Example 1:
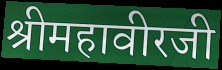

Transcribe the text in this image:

श्रीमहावीरजी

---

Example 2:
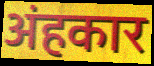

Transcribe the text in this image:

अंहकार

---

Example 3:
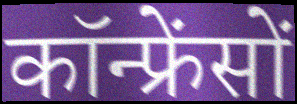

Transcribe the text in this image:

कॉन्फ्रेंसों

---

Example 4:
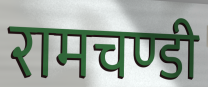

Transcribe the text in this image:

रामचण्डी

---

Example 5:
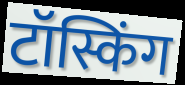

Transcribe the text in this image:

टॉस्किंग